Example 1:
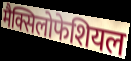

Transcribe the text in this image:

मैक्सिलोफेशियल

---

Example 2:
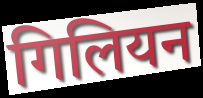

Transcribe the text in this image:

गिलियन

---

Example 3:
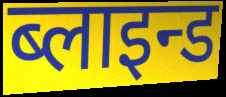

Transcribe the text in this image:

ब्लाइन्ड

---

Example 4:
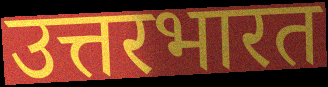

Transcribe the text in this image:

उत्तरभारत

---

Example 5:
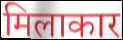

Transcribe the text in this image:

मिलाकार